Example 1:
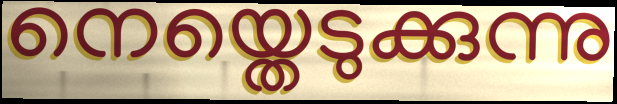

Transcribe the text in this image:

നെയ്തെടുക്കുന്നു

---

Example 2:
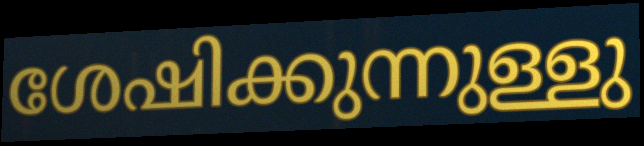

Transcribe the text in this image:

ശേഷിക്കുന്നുള്ളു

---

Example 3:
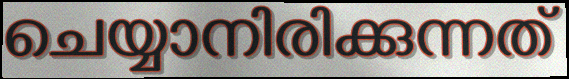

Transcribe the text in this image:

ചെയ്യാനിരിക്കുന്നത്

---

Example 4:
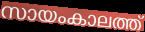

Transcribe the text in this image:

സായംകാലത്ത്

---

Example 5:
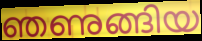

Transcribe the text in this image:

ഞണുങ്ങിയ